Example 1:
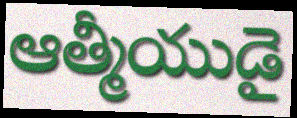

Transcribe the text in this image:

ఆత్మీయుడై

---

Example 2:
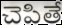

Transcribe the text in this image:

చెపితే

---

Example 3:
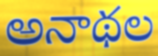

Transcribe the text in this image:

అనాథల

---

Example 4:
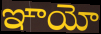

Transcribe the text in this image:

ఞాయో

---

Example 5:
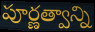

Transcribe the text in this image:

పూర్ణత్వాన్ని